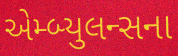
એમ્બ્યુલન્સના